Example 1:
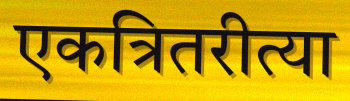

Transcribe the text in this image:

एकत्रितरीत्या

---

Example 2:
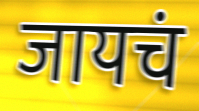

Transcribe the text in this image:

जायचं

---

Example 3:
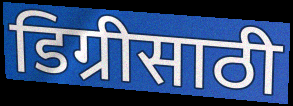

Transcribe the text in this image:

डिग्रीसाठी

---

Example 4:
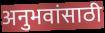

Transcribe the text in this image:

अनुभवांसाठी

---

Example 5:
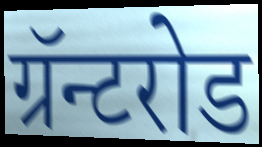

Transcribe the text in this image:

ग्रॅन्टरोड